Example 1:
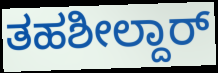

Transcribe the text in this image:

ತಹಶೀಲ್ದಾರ್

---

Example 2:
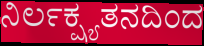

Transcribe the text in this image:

ನಿರ್ಲಕ್ಷ್ಯತನದಿಂದ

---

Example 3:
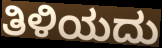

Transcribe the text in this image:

ತಿಳಿಯದು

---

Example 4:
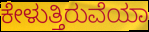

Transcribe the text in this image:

ಕೇಳುತ್ತಿರುವೆಯಾ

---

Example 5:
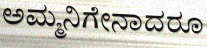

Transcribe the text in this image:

ಅಮ್ಮನಿಗೇನಾದರೂ